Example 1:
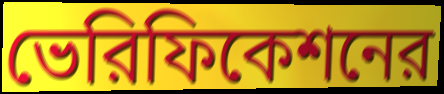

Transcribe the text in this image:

ভেরিফিকেশনের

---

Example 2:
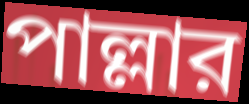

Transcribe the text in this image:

পাল্লার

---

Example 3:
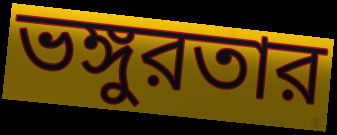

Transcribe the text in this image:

ভঙ্গুরতার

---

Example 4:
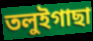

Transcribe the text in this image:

তলুইগাছা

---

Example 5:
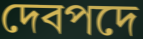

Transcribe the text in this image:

দেবপদে